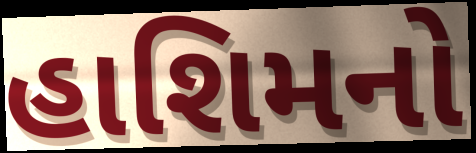
હાશિમનો